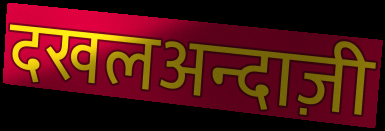
दखलअन्दाज़ी